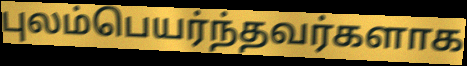
புலம்பெயர்ந்தவர்களாக